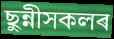
ছুন্নীসকলৰ